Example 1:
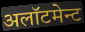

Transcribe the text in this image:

अलॉटमेन्ट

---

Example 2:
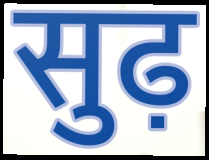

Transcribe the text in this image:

सुढ़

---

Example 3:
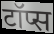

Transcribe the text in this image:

टॉप्स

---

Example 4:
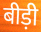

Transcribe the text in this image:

बीड़ी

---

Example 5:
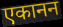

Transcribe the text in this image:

एकानन